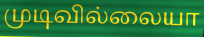
முடிவில்லையா